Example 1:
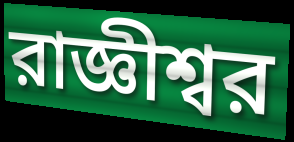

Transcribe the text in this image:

রাজ্ঞীশ্বর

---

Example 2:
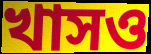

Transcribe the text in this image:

খাসও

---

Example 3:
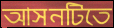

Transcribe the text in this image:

আসনটিতে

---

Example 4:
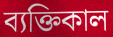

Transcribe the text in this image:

ব্যক্তিকাল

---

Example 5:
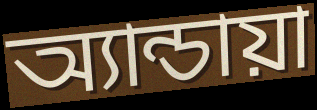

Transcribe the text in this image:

অ্যান্ডায়া